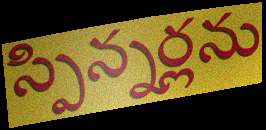
స్పిన్నర్లను